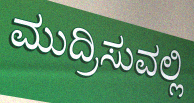
ಮುದ್ರಿಸುವಲ್ಲಿ